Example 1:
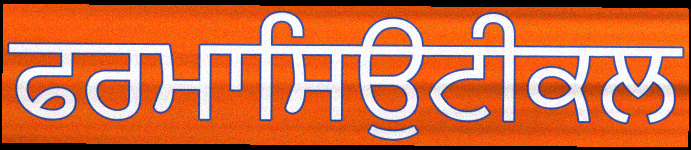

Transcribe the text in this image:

ਫਰਮਾਸਿਉਟੀਕਲ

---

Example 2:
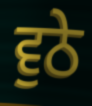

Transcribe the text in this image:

ਵੁਠੇ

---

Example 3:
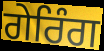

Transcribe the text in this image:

ਗੇਰਿੰਗ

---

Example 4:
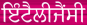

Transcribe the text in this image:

ਇੰਟੈਲੀਜੈਂਸੀ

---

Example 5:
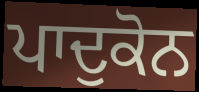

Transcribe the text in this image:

ਪਾਦੁਕੋਨ